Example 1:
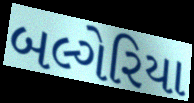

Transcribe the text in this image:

બલ્ગેરિયા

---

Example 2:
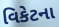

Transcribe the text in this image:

વિકેટના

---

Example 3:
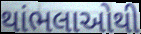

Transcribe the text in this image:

થાંભલાઓથી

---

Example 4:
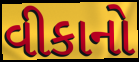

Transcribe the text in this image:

વીકાનો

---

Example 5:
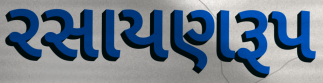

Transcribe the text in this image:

રસાયણરૂપ